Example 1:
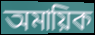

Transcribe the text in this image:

অমায়িক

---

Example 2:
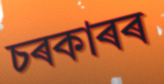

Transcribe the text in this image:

চৰকাৰৰ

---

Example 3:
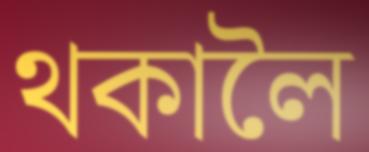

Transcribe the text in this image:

থকালৈ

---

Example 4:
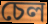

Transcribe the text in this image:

চেল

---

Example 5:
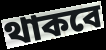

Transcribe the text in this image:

থাকবে